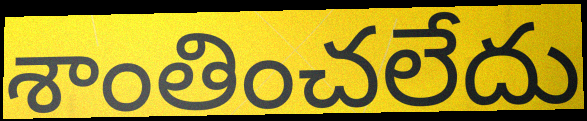
శాంతించలేదు